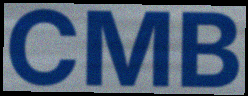
CMB